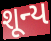
શૂન્ય